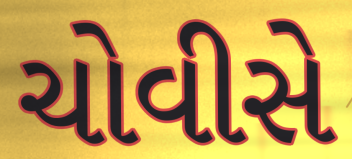
ચોવીસે